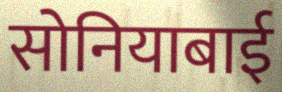
सोनियाबाई